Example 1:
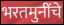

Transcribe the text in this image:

भरतमुनींचे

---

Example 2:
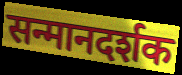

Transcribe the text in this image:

सन्मानदर्शक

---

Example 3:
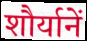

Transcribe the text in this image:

शौर्यानें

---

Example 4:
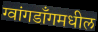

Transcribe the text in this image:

ग्वांगडाँगमधील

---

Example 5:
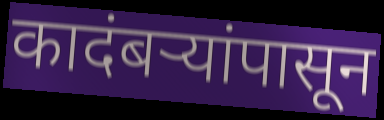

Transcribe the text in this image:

कादंबऱ्यांपासून